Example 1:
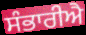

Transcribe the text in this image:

ਸੰਭਾਰੀਐ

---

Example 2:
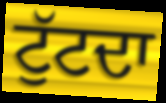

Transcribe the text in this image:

ਟੁੱਟਦਾ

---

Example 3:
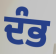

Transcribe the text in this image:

ਦੰਭ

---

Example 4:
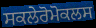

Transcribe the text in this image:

ਸਕਲੇਰੋਮੋਕਲਸ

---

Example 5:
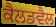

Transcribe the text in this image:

ਕੈਲਡਵੈਲ